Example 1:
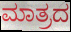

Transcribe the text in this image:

ಮಾತ್ರದ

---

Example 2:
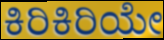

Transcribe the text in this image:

ಕಿರಿಕಿರಿಯೇ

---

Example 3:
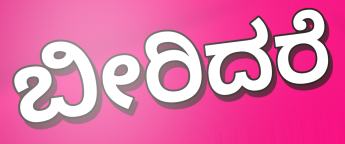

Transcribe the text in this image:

ಬೀರಿದರೆ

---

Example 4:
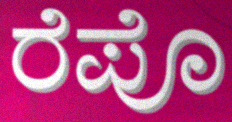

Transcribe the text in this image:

ರೆಪೊ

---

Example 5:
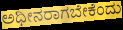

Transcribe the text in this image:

ಅಧೀನರಾಗಬೇಕೆಂದು